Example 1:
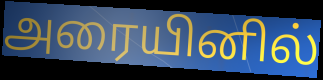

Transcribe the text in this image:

அரையினில்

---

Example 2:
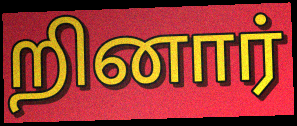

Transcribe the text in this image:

றினார்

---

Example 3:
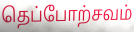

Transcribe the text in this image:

தெப்போற்சவம்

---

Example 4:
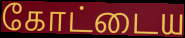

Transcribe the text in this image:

கோட்டைய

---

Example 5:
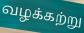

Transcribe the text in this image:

வழக்கற்று